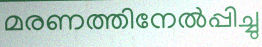
മരണത്തിനേൽപ്പിച്ചു